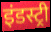
इंडस्ट्री